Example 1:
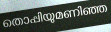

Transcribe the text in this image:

തൊപ്പിയുമണിഞ്ഞ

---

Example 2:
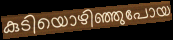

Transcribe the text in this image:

കുടിയൊഴിഞ്ഞുപോയ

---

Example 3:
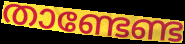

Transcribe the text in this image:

താണ്ടേണ്ട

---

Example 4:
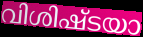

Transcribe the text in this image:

വിശിഷ്ടയാ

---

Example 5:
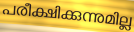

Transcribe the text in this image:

പരീക്ഷിക്കുന്നുമില്ല